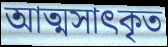
আত্মসাৎকৃত